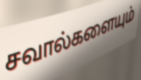
சவால்களையும்